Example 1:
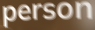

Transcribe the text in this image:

person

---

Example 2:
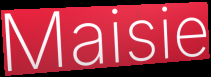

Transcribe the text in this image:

Maisie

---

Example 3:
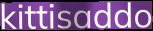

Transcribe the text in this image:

kittisaddo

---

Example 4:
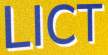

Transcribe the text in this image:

LICT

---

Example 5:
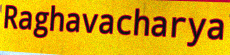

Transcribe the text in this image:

Raghavacharya